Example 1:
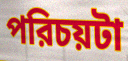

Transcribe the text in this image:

পরিচয়টা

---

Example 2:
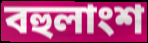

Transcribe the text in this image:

বহুলাংশ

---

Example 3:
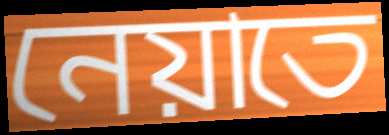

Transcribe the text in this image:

নেয়াতে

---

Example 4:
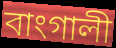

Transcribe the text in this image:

বাংগালী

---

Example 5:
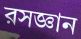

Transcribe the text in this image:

রসজ্ঞান